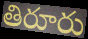
తిరూరు